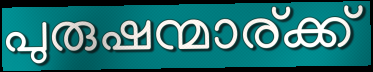
പുരുഷന്മാര്ക്ക്